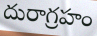
దురాగ్రహం